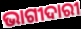
ଭାଗୀଦାରୀ